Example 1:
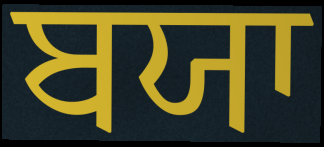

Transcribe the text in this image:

ਬਯਾ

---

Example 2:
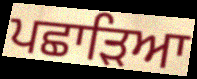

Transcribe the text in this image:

ਪਛਾੜਿਆ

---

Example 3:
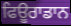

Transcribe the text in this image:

ਫਿਊਰਾਡਾਨ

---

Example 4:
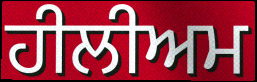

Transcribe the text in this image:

ਹੀਲੀਅਮ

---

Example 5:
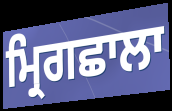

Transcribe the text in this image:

ਮ੍ਰਿਗਛਾਲਾ